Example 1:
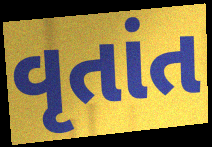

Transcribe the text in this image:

વૃતાંત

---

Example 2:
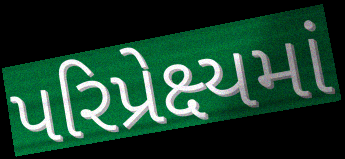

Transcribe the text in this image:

પરિપ્રેક્ષ્યમાં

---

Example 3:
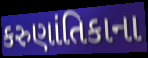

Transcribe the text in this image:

કરુણાંતિકાના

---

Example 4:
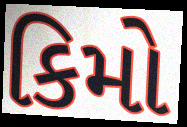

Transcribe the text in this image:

કિમો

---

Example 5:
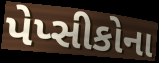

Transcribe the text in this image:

પેપ્સીકોના